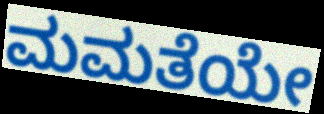
ಮಮತೆಯೇ